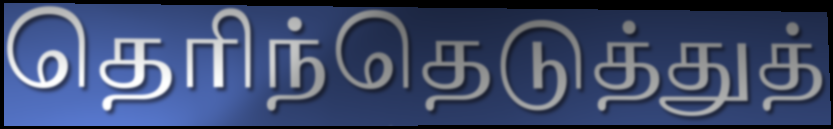
தெரிந்தெடுத்துத்